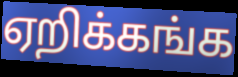
ஏறிக்கங்க